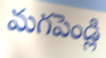
మగపెండ్లి